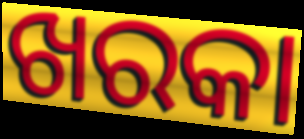
ଖରକା